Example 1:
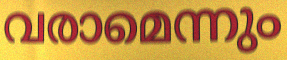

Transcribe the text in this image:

വരാമെന്നും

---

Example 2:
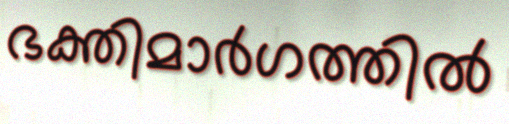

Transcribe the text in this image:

ഭക്തിമാർഗത്തിൽ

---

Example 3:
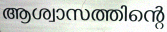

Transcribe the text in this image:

ആശ്വാസത്തിന്റെ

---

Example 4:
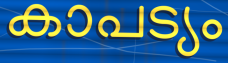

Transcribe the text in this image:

കാപട്യം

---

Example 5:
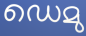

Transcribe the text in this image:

ഡെമു